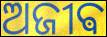
ଅଜୀଵ